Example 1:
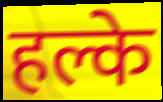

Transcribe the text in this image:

हल्के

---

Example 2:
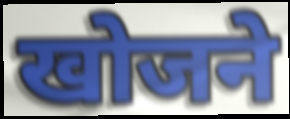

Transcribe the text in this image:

खोजने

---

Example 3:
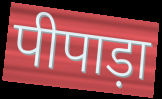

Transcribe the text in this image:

पीपाड़ा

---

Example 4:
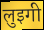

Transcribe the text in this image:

लुइगी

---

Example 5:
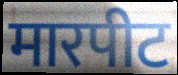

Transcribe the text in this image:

मारपीट